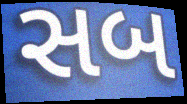
સબ